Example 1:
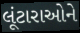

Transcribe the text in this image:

લૂંટારાઓને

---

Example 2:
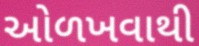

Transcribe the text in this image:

ઓળખવાથી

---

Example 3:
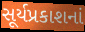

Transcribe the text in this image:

સૂર્યપ્રકાશનાં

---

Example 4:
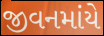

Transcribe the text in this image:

જીવનમાંયે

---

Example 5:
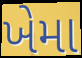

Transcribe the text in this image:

ખેમા